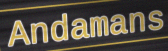
Andamans